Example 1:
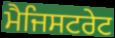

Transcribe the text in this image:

ਮੈਜਿਸਟਰੇਟ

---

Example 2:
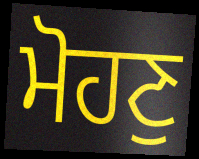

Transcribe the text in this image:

ਮੋਹਣੁ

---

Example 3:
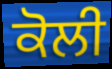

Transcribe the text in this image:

ਕੋਲੀ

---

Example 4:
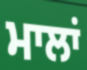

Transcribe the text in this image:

ਮਾਲਾਂ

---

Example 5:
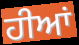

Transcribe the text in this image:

ਹੀਆਂ